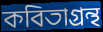
কবিতাগ্রন্থ